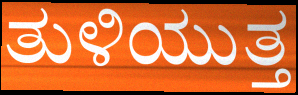
ತುಳಿಯುತ್ತ